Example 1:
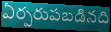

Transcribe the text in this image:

ఏర్పరుపబడినది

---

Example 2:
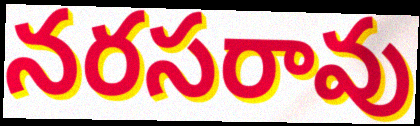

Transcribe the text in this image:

నరసరావు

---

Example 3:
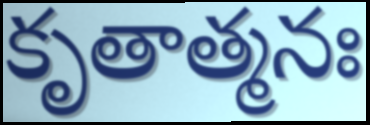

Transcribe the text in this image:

కృతాత్మనః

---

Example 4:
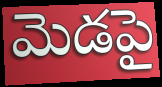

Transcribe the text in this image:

మెడపై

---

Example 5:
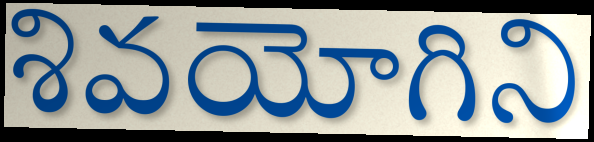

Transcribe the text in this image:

శివయోగిని